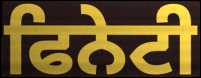
ਫਿਨੇਟੀ